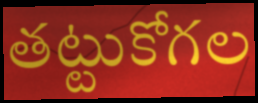
తట్టుకోగల